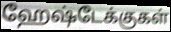
ஹேஷ்டேக்குகள்